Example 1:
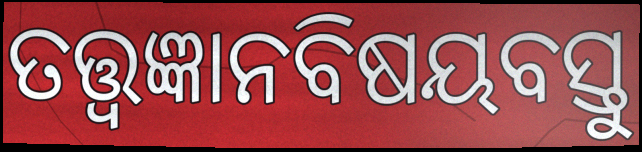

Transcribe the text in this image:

ତତ୍ତ୍ୱଜ୍ଞାନବିଷୟବସ୍ତୁ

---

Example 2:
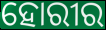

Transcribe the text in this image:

ହୋରୀର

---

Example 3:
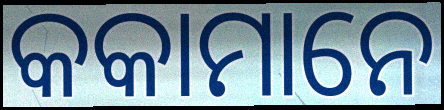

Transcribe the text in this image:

କକାମାନେ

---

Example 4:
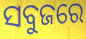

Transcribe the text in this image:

ସବୁଜରେ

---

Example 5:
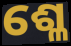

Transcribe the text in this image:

ଶ୍ଳେ